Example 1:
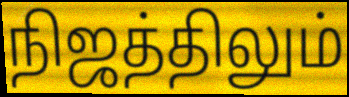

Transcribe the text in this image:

நிஜத்திலும்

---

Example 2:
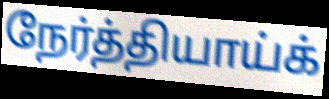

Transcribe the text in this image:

நேர்த்தியாய்க்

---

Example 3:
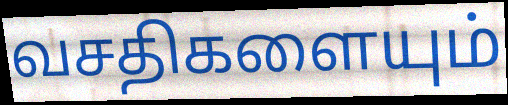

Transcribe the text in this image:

வசதிகளையும்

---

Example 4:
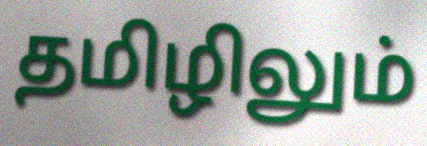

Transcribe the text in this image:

தமிழிலும்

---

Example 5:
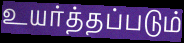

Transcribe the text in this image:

உயர்த்தப்படும்